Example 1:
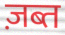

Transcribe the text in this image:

ज़ब्त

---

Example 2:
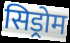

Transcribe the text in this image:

सिड्रोम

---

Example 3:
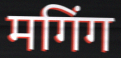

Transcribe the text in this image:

मगिंग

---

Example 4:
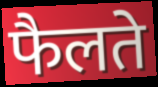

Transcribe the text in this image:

फैलते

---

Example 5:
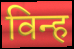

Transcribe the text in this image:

विन्ह